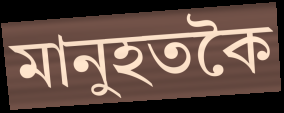
মানুহতকৈ